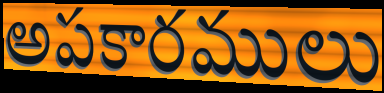
అపకారములు